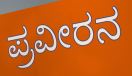
ಪ್ರವೀರನ